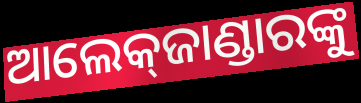
ଆଲେକ୍‌ଜାଣ୍ଡାରଙ୍କୁ